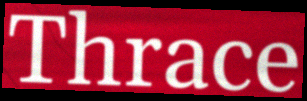
Thrace